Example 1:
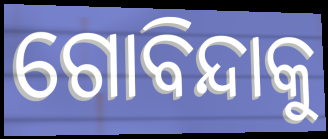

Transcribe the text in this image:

ଗୋବିନ୍ଦାକୁ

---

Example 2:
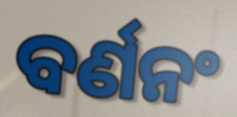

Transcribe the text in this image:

ବର୍ଣନଂ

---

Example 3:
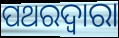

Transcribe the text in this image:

ପଥରଦ୍ୱାରା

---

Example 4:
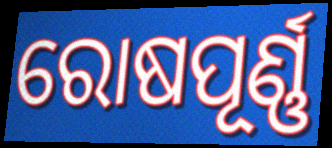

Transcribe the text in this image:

ରୋଷପୂର୍ଣ୍ଣ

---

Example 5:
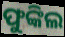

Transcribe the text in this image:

ଫୁଙ୍କିଲ